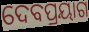
ଦେବପ୍ରୟାଗ